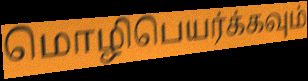
மொழிபெயர்க்கவும்